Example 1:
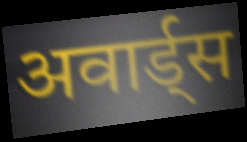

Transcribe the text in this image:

अवार्ड्स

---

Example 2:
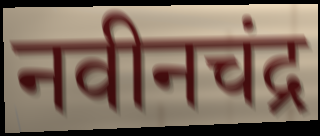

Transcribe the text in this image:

नवीनचंद्र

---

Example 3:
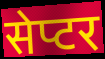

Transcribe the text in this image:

सेप्टर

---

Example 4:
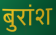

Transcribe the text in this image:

बुरांश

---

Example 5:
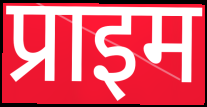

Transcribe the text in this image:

प्राइम